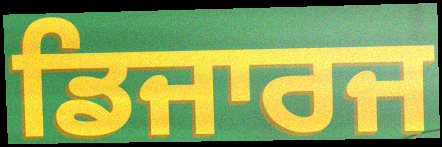
ਡਿਜਾਰਜ